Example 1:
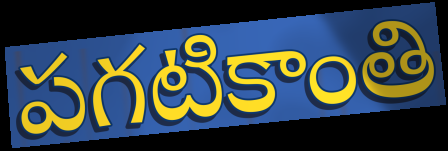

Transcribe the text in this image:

పగటికాంతి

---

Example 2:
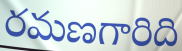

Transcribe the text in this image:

రమణగారిది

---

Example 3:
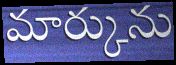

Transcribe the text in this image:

మార్కును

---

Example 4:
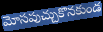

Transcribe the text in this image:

మోసపుచ్చుకొనకుండ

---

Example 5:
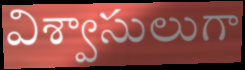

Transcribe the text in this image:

విశ్వాసులుగా